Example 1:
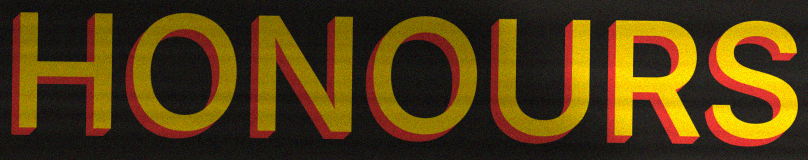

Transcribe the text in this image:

HONOURS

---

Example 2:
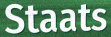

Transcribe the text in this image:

Staats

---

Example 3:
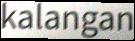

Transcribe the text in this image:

kalangan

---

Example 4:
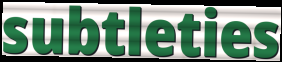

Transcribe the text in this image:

subtleties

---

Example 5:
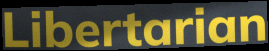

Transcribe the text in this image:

Libertarian